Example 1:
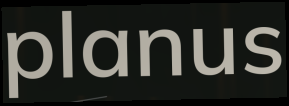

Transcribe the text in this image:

planus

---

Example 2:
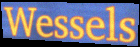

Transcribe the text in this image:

Wessels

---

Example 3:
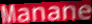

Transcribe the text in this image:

Manane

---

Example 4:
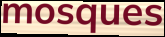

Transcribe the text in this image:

mosques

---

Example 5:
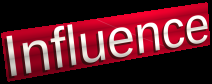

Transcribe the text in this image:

Influence